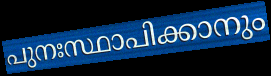
പുനഃസ്ഥാപിക്കാനും